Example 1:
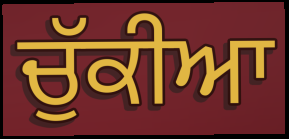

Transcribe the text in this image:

ਚੁੱਕੀਆ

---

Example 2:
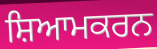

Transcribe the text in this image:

ਸ਼ਿਆਮਕਰਨ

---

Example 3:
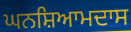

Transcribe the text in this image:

ਘਨਸ਼ਿਆਮਦਾਸ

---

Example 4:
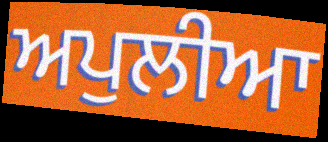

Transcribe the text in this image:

ਅਪੁਲੀਆ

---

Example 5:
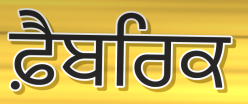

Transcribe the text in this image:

ਫ਼ੈਬਰਿਕ